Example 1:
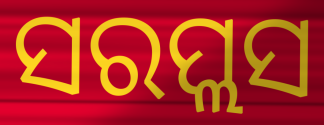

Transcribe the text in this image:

ସରପ୍ଲସ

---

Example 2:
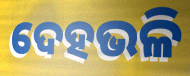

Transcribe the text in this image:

ଦେହଭଳି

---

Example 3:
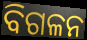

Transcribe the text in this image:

ବିଗଳନ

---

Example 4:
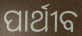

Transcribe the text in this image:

ପାର୍ଥୀବ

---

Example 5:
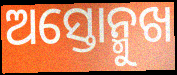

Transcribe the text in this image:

ଅସ୍ତୋନ୍ମୁଖ